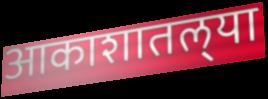
आकाशातल्या